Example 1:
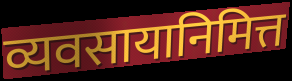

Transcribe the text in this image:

व्यवसायानिमित्त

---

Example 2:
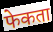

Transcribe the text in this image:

फेकता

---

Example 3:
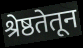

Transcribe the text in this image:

श्रेष्ठतेतून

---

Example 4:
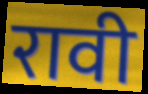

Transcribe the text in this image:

रावी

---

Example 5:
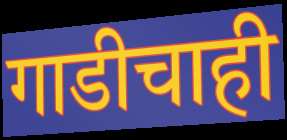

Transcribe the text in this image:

गाडीचाही